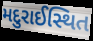
મદુરાઈસ્થિત